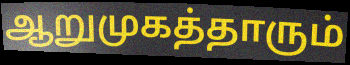
ஆறுமுகத்தாரும்